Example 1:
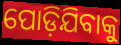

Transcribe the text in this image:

ପୋଡ଼ିଯିବାକୁ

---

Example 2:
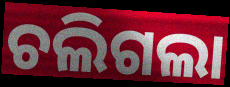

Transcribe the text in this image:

ଚଲିଗଲା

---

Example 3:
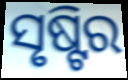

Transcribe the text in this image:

ସୃଷ୍ଟିର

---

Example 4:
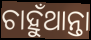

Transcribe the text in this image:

ଚାହୁଁଥାନ୍ତା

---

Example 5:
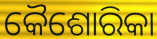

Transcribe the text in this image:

କୈଶୋରିକା